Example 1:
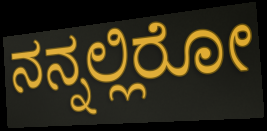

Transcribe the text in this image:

ನನ್ನಲ್ಲಿರೋ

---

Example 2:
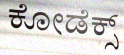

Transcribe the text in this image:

ಕೋಡೆಕ್ಸ್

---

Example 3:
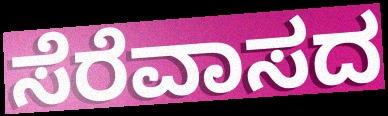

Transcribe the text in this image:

ಸೆರೆವಾಸದ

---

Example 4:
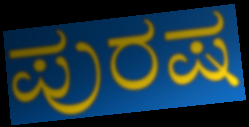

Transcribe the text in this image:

ಪುರಷ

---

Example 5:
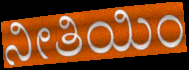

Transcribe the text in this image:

ನೀತಿಯಿಂ